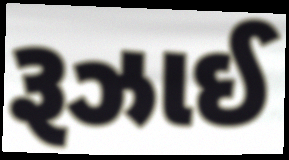
રૂઝાઈ